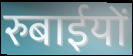
रुबाईयों